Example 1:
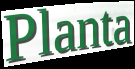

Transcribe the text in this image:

Planta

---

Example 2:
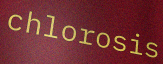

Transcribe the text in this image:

chlorosis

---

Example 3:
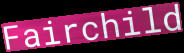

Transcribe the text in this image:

Fairchild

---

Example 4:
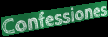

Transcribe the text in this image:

Confessiones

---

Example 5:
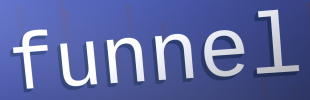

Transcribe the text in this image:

funnel